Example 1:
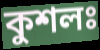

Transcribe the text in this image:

কুশলঃ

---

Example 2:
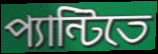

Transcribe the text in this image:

প্যান্টিতে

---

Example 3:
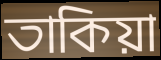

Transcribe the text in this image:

তাকিয়া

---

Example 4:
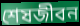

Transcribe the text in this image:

শেষজীবন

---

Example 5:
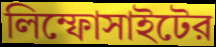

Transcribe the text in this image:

লিম্ফোসাইটের